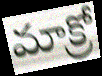
మాక్రో